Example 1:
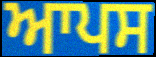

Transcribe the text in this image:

ਆਪਸ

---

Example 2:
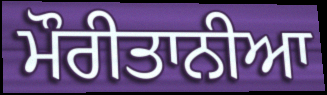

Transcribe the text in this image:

ਮੌਰੀਤਾਨੀਆ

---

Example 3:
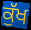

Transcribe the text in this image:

ਕੁੱਖ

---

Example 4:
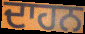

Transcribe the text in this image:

ਦਾਹਨ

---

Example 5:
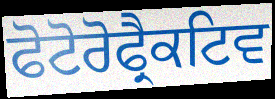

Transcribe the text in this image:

ਫੋਟੋਰੋਫ੍ਰੈਕਟਿਵ